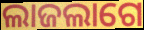
ଲାଜଲାଗେ